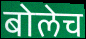
बोलेच